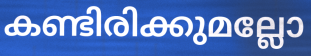
കണ്ടിരിക്കുമല്ലോ